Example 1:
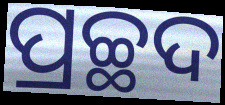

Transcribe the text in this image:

ପ୍ରଚ୍ଛଦ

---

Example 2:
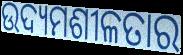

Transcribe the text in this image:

ଉଦ୍ୟମଶୀଳତାର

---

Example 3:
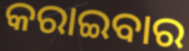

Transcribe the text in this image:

କରାଇବାର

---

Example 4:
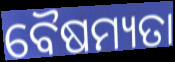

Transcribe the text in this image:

ବୈଷମ୍ୟତା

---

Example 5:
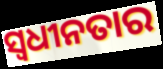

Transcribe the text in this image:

ସ୍ବଧୀନତାର